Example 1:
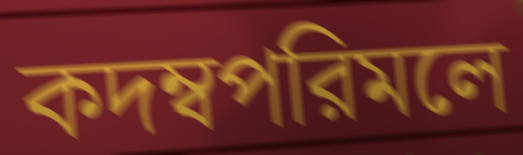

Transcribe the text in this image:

কদম্বপরিমলে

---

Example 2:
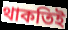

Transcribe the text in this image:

থাকতিই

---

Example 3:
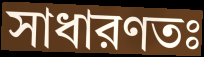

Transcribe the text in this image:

সাধারণতঃ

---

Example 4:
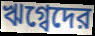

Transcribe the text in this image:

ঋগ্বেদের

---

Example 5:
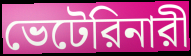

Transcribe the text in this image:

ভেটেরিনারী